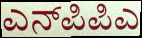
ಎನ್‌ಪಿಪಿಎ